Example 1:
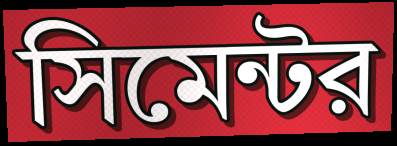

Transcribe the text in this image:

সিমেন্টর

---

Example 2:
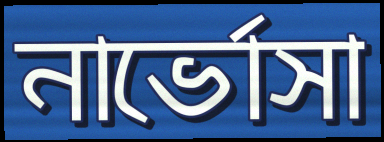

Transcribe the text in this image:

নার্ভোসা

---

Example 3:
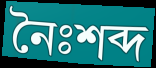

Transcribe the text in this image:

নৈঃশব্দ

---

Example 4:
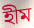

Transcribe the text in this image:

হীম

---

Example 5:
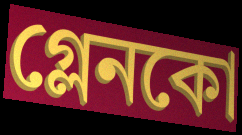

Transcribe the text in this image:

গ্লেনকো